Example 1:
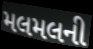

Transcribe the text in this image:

મલમલની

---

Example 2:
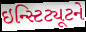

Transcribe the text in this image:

ઇન્સ્ટિટ્યૂટને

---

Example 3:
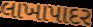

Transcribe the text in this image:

લાખાપાદર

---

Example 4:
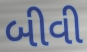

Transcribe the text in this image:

બીવી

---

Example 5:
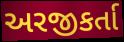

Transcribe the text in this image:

અરજીકર્તા